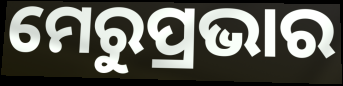
ମେରୁପ୍ରଭାର